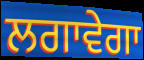
ਲਗਾਵੇਗਾ